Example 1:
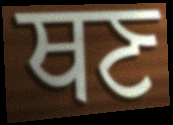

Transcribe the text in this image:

ਥਣ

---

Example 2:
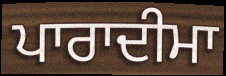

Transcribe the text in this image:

ਪਾਰਾਦੀਮਾ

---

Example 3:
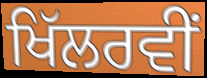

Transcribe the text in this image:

ਖਿੱਲਰਵੀਂ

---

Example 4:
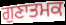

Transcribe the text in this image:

ਗੁਣਾਤਮਕ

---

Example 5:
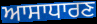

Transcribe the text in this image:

ਆਸਾਧਾਰਣ